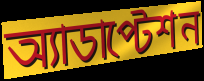
অ্যাডাপ্টেশন